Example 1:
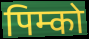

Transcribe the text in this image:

पिम्को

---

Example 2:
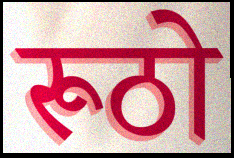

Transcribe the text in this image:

रूठो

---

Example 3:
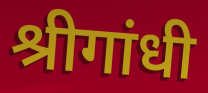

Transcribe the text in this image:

श्रीगांधी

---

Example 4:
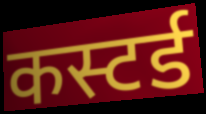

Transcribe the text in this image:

कस्टर्ड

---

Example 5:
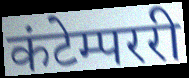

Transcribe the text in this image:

कंटेम्पररी